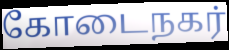
கோடைநகர்